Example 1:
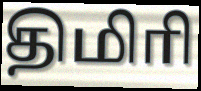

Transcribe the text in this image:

திமிரி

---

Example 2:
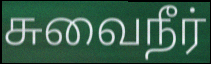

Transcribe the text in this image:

சுவைநீர்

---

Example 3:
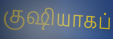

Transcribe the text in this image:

குஷியாகப்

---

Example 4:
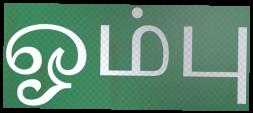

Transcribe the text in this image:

ஓம்பு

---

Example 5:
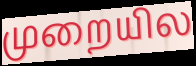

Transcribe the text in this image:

முறையில